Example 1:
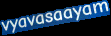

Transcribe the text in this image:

vyavasaayam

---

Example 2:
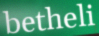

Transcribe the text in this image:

betheli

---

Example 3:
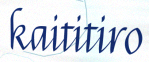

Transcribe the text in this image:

kaititiro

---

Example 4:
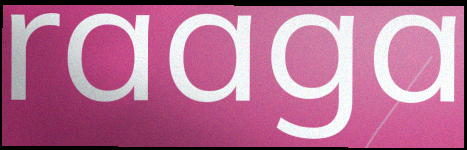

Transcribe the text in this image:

raaga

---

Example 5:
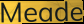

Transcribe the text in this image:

Meade